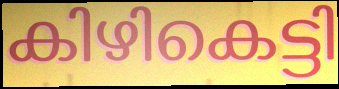
കിഴികെട്ടി